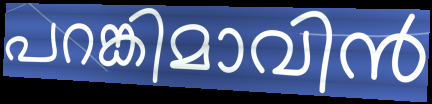
പറങ്കിമാവിൻ